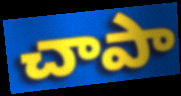
చాపా